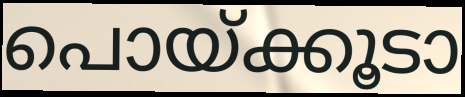
പൊയ്ക്കൂടാ